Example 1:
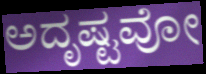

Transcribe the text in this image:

ಅದೃಷ್ಟವೋ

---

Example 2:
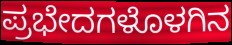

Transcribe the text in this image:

ಪ್ರಭೇದಗಳೊಳಗಿನ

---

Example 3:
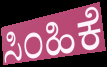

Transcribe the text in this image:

ಸಿಂಹಿಕೆ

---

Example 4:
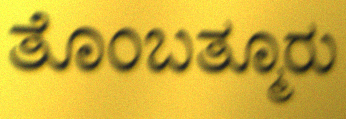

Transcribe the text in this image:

ತೊಂಬತ್ಮೂರು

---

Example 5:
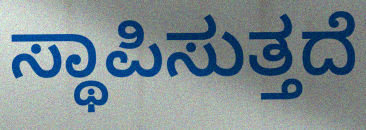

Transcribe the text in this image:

ಸ್ಥಾಪಿಸುತ್ತದೆ